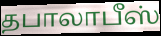
தபாலாபீஸ்